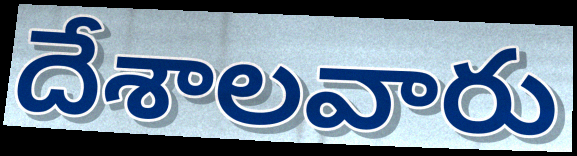
దేశాలవారు